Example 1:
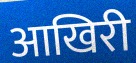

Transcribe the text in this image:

आखिरी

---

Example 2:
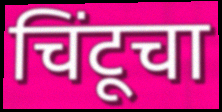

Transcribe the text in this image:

चिंटूचा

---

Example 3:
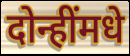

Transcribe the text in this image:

दोन्हींमधे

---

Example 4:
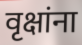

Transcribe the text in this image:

वृक्षांना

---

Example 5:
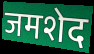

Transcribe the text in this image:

जमशेद